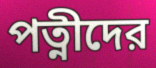
পত্নীদের